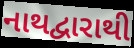
નાથદ્વારાથી